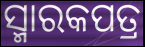
ସ୍ମାରକପତ୍ର